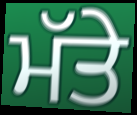
ਮੱਤੇ